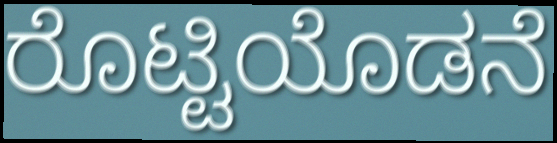
ರೊಟ್ಟಿಯೊಡನೆ